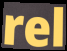
rel